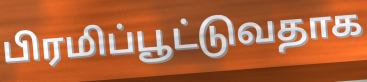
பிரமிப்பூட்டுவதாக